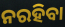
ନରହିବା